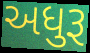
અધુરૂ